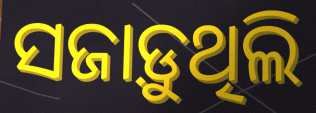
ସଜାଡ଼ୁଥିଲି